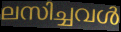
ലസിച്ചവൾ